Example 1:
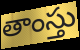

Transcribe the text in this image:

తాంస్తు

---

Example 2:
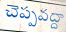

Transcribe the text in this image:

చెప్పవద్దా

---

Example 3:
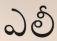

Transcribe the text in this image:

ఎలీ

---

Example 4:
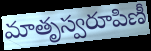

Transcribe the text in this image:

మాతృస్వరూపిణీ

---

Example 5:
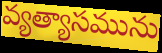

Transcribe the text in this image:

వ్యత్యాసమును